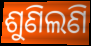
ଶୁଣିଲଣି